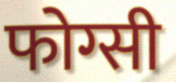
फोग्सी